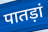
पातड़ां